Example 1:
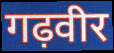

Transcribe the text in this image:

गढ़वीर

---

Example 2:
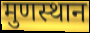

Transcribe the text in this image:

मुणस्थान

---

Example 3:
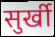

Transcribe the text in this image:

सुर्खी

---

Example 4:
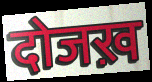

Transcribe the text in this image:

दोजख़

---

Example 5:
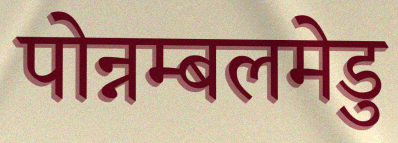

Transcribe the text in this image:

पोन्नम्बलमेडु